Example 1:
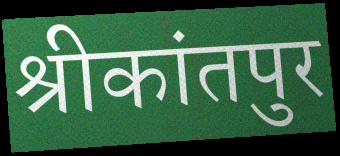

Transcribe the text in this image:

श्रीकांतपुर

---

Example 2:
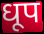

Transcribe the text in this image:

धूप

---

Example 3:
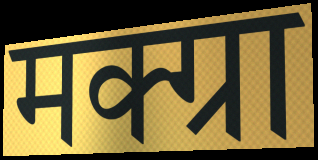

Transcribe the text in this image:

मक्ग्रा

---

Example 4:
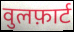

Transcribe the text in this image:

वुलफ़ार्ट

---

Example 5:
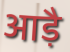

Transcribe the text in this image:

आड़ै